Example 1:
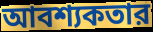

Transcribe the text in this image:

আবশ্যকতার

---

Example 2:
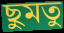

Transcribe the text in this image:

ছুমতু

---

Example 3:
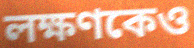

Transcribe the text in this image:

লক্ষণকেও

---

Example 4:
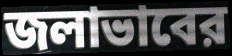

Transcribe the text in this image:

জলাভাবের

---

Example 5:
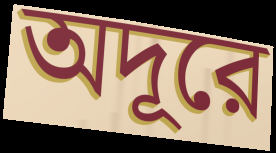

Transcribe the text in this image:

অদূরে